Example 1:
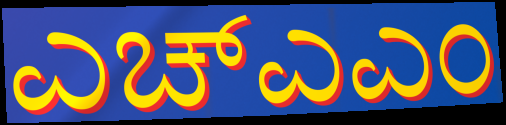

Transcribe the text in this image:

ಎಚ್ಎಎಂ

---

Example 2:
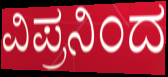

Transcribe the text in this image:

ವಿಪ್ರನಿಂದ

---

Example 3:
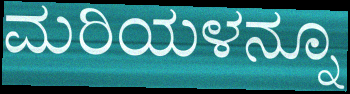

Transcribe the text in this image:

ಮರಿಯಳನ್ನೂ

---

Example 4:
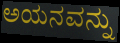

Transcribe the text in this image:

ಅಯನವನ್ನು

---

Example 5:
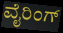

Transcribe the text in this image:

ವೈರಿಂಗ್